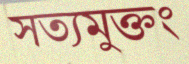
সত্যমুক্তং